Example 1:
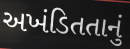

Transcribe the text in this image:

અખંડિતતાનું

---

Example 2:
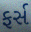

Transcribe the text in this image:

ફર્સ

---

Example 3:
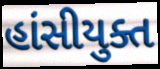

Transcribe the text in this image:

હાંસીયુક્ત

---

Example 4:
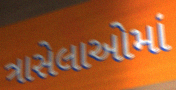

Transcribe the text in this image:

ત્રાસેલાઓમાં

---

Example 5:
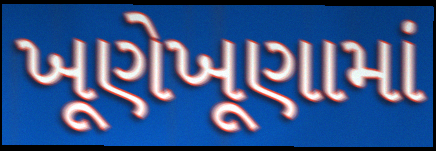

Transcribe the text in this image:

ખૂણેખૂણામાં